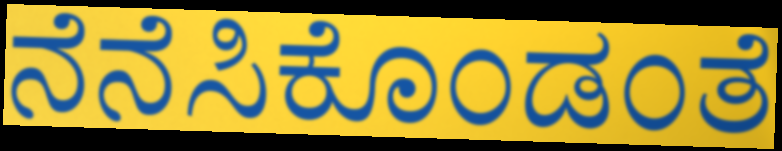
ನೆನೆಸಿಕೊಂಡಂತೆ